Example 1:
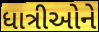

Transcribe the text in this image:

ધાત્રીઓને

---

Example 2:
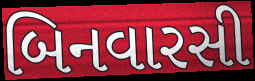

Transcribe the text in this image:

બિનવારસી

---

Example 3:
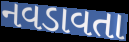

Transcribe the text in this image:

નવડાવતા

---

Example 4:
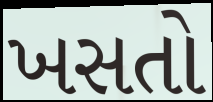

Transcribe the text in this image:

ખસતો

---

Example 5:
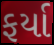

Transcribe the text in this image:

ફર્યા